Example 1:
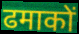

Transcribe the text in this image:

ढमाकों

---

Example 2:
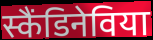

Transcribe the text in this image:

स्कैंडिनेविया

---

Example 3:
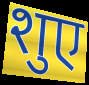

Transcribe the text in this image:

शुए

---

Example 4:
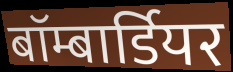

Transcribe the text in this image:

बॉम्बार्डियर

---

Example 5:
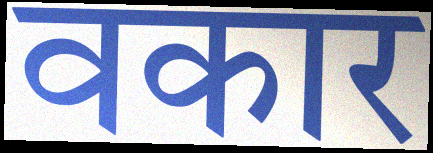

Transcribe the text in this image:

वकार